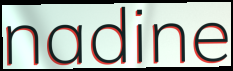
nadine